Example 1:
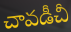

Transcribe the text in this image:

చావడీచీ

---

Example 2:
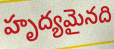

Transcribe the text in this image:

హృద్యమైనది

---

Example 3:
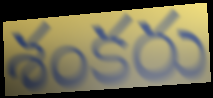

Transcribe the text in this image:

శంకరు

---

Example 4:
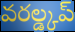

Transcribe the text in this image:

వరల్డ్కప్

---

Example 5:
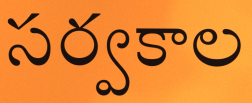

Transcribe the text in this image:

సర్వకాల